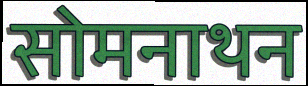
सोमनाथन